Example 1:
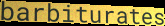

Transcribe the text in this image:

barbiturates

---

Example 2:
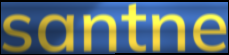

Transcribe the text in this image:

santne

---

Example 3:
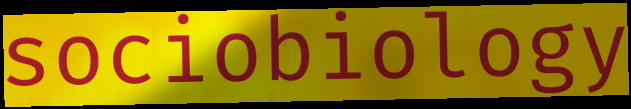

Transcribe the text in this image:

sociobiology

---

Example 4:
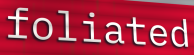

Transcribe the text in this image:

foliated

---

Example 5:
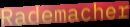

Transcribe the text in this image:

Rademacher